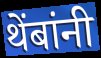
थेंबांनी